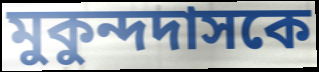
মুকুন্দদাসকে